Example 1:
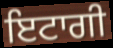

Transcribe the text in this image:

ਇਟਾਗੀ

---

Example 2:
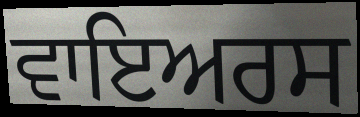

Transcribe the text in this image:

ਵਾਇਅਰਸ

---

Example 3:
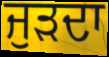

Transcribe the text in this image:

ਜੁੜਦਾ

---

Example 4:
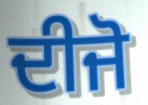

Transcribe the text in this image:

ਦੀਜੋ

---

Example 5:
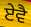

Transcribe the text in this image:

ਏਵੈ